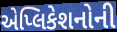
એપ્લિકેશનોની